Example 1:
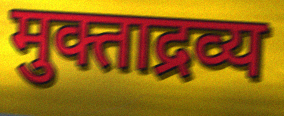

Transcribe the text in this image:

मुक्ताद्रव्य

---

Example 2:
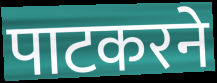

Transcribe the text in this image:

पाटकरने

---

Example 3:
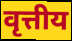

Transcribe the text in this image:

वृत्तीय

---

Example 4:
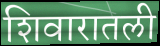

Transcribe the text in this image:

शिवारातली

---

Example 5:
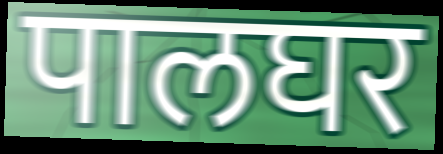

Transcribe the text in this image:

पालघर